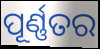
ପୂର୍ଣ୍ଣତର